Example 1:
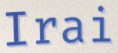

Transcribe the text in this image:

Irai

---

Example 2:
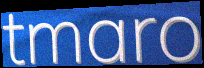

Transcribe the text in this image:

tmaro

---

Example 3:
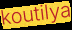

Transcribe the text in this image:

koutilya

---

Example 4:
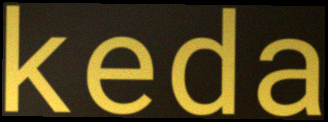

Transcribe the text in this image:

keda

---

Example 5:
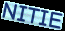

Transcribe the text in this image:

NITIE